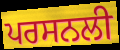
ਪਰਸਨਲੀ